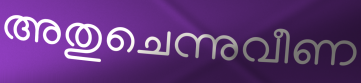
അതുചെന്നുവീണ